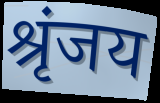
श्रृंजय